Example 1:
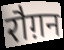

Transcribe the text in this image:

रौग़न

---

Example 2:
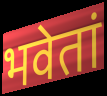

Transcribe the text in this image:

भवेतां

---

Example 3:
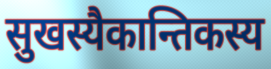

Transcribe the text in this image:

सुखस्यैकान्तिकस्य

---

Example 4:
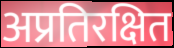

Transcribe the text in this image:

अप्रतिरक्षित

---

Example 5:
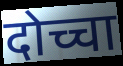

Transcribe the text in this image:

दोच्चा